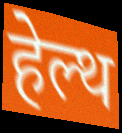
हेल्थ